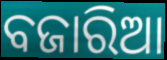
ବଜାରିଆ